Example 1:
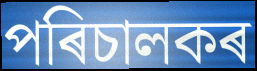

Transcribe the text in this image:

পৰিচালকৰ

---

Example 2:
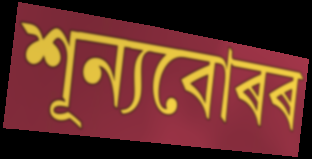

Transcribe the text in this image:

শূন্যবোৰৰ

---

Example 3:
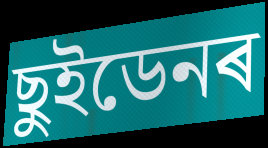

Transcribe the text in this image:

ছুইডেনৰ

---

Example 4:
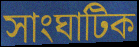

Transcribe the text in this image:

সাংঘাটিক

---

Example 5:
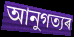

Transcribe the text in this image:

আনুগত্যৰ